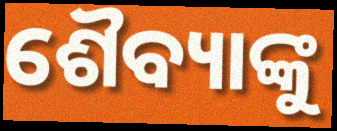
ଶୈବ୍ୟାଙ୍କୁ